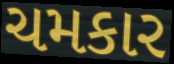
ચમકાર